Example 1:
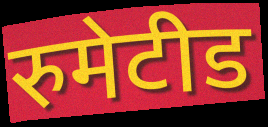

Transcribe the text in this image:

रुमेटीड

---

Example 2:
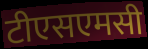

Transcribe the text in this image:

टीएसएमसी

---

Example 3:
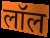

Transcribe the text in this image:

लॉल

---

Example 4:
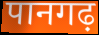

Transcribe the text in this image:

पानगढ़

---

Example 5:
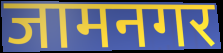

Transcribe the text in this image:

जामनगर